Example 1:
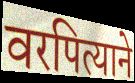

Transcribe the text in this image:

वरपित्याने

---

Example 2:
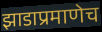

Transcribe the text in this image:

झाडाप्रमाणेच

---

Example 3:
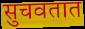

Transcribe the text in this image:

सुचवतात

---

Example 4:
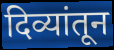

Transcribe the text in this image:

दिव्यांतून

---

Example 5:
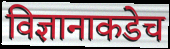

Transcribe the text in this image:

विज्ञानाकडेच